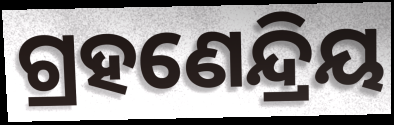
ଗ୍ରହଣେନ୍ଦ୍ରିୟ